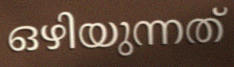
ഒഴിയുന്നത്